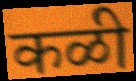
कळी